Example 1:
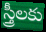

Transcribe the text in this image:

స్త్రీలకు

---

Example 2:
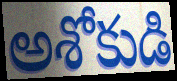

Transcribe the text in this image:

అశోకుడి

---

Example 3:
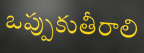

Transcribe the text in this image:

ఒప్పుకుతీరాలి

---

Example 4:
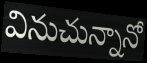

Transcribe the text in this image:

వినుచున్నానో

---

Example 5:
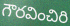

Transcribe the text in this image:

గౌరవించిరి